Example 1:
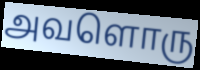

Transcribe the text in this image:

அவளொரு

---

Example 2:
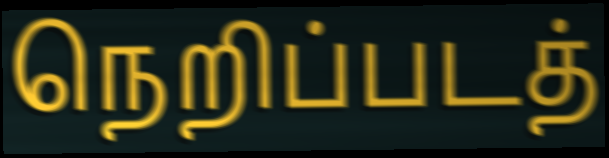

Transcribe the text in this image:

நெறிப்படத்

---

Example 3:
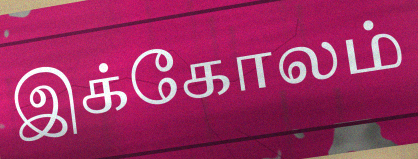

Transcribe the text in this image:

இக்கோலம்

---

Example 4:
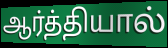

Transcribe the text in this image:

ஆர்த்தியால்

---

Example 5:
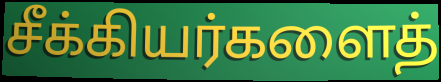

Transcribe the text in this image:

சீக்கியர்களைத்